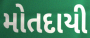
મોતદાયી